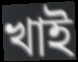
খাই